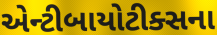
એન્ટીબાયોટીક્સના